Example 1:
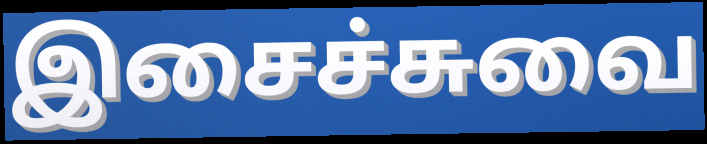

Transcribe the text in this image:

இசைச்சுவை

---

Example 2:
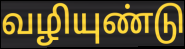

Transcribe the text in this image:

வழியுண்டு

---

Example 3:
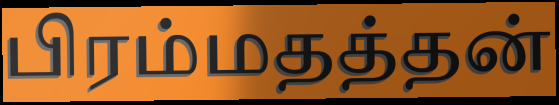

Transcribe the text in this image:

பிரம்மதத்தன்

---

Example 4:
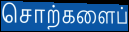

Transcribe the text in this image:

சொற்களைப்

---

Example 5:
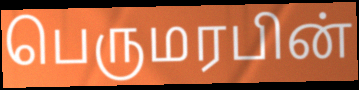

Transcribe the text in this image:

பெருமரபின்